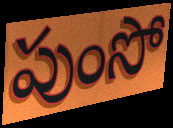
పుంసో